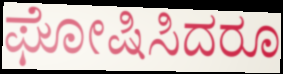
ಘೋಷಿಸಿದರೂ